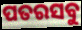
ପତରସବୁ